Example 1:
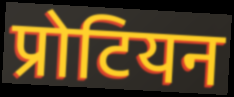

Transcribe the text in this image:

प्रोटियन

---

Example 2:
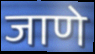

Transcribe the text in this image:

जाणे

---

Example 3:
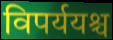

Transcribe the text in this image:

विपर्ययश्च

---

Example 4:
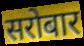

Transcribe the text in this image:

सरोबार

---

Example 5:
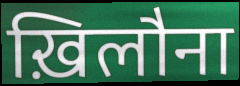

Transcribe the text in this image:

ख़िलौना